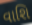
વાશિ